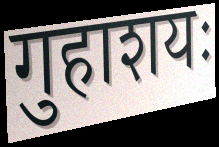
गुहाशयः